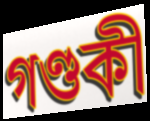
গণ্ডকী